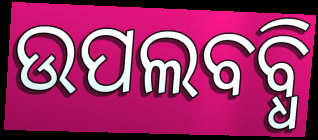
ଉପଲବବ୍ଧି